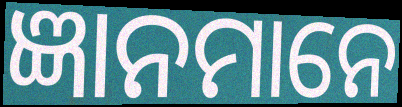
ଜ୍ଞାନମାନେ